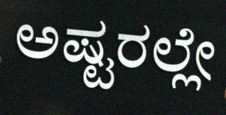
ಅಷ್ಟರಲ್ಲೇ